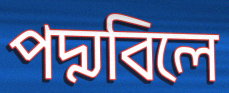
পদ্মবিলে